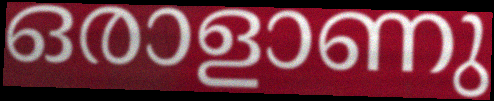
ഒരാളാണു